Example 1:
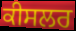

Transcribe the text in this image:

ਕੀਸਲਰ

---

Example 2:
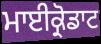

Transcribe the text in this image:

ਮਾਈਕ੍ਰੋਡਾਟ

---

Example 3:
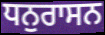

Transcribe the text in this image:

ਧਨੁਰਾਸਨ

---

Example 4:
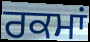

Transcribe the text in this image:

ਰਕਮਾਂ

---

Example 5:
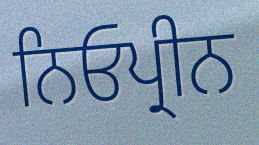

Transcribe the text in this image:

ਨਿਓਪ੍ਰੀਨ